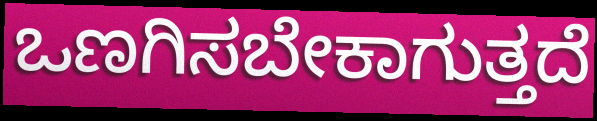
ಒಣಗಿಸಬೇಕಾಗುತ್ತದೆ